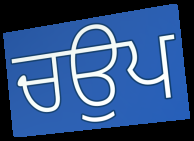
ਚਉਪ